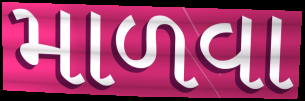
માળવા